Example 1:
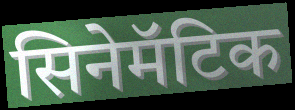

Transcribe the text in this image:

सिनेमॅटिक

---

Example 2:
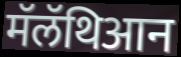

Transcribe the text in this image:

मॅलॅथिआन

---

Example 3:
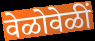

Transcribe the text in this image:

वेळोवेळीं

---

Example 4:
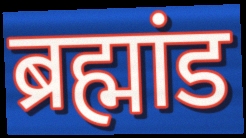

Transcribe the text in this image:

ब्रह्मांड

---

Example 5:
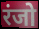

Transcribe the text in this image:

रंजो